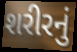
શરીરનું